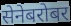
सेनेबरोबर